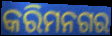
କରିମନଗର